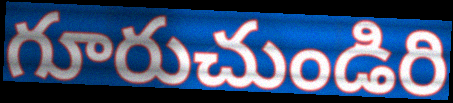
గూరుచుండిరి